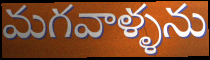
మగవాళ్ళను